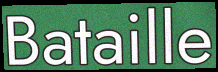
Bataille